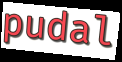
pudal